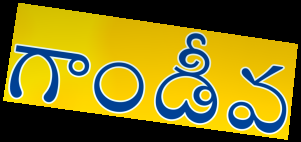
గాండీవ